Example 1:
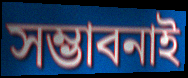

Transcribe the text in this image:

সম্ভাবনাই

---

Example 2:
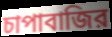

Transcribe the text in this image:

চাপাবাজির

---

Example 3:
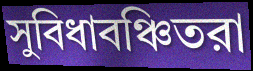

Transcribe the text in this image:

সুবিধাবঞ্চিতরা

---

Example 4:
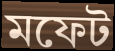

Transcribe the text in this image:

মফেট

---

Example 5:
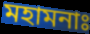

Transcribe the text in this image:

মহামনাঃ